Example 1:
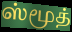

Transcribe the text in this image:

ஸ்மூத்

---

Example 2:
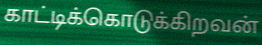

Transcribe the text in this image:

காட்டிக்கொடுக்கிறவன்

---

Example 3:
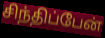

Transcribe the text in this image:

சிந்திப்பேன்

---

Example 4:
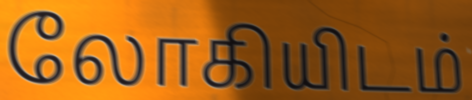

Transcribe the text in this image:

லோகியிடம்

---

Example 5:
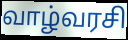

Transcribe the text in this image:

வாழ்வரசி